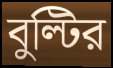
বুল্টির